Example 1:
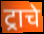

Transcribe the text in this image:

ट्राचे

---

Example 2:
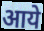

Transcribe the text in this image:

आये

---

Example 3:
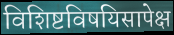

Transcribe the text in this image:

विशिष्टविषयिसापेक्ष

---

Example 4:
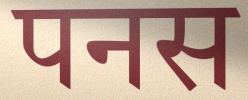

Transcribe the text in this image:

पनस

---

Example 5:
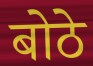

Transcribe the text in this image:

बोठे